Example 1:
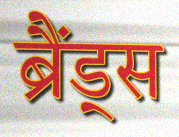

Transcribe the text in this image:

ब्रैंड्स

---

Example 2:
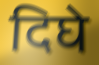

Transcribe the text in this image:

दिघे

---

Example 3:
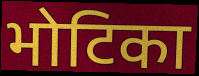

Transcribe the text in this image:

भोटिका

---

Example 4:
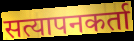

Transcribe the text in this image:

सत्यापनकर्ता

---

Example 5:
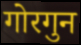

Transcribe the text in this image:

गोरगुन